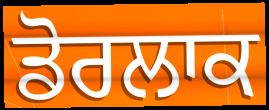
ਡੋਰਲਾਕ